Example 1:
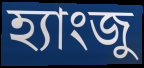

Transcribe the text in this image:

হ্যাংজু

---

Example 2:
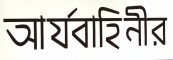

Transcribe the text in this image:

আর্যবাহিনীর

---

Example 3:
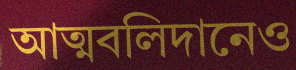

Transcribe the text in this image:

আত্মবলিদানেও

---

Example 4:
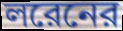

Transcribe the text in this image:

লরেনের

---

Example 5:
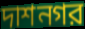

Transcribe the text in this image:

দাশনগর